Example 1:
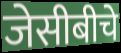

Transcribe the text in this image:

जेसीबीचे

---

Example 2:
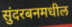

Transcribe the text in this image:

सुंदरबनमधील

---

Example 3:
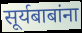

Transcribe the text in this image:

सूर्यबाबांना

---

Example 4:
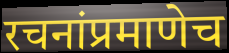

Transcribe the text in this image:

रचनांप्रमाणेच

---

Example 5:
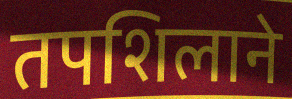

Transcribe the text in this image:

तपशिलाने